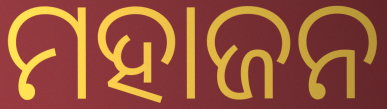
ମହାଜନ